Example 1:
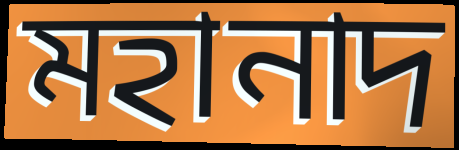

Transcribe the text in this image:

মহানাদ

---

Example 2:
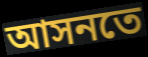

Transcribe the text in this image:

আসনতে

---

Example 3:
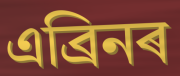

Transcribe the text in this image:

এব্ৰিনৰ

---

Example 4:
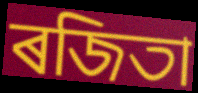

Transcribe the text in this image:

ৰজিতা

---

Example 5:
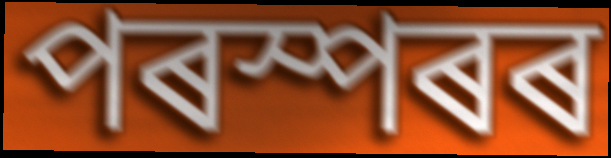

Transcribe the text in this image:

পৰস্পৰৰ